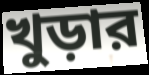
খুড়ার